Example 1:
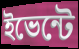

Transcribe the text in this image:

ইভেন্টে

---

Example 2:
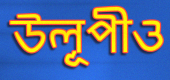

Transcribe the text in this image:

উলূপীও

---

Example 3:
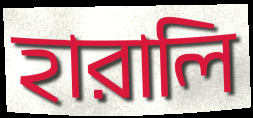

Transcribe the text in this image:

হারালি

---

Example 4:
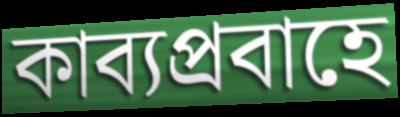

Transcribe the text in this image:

কাব্যপ্রবাহে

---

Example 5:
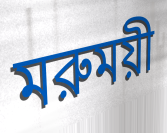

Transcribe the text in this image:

মরুময়ী